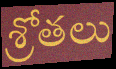
శ్రోతలు